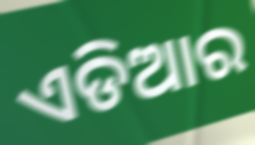
ଏଡିଆର